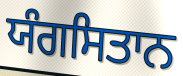
ਯੰਗਸਿਤਾਨ